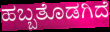
ಹಬ್ಬತೊಡಗಿದೆ